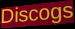
Discogs